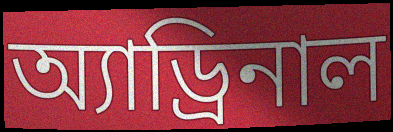
অ্যাড্রিনাল